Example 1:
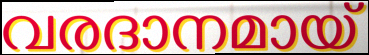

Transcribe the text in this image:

വരദാനമായ്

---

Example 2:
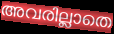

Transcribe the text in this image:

അവരില്ലാതെ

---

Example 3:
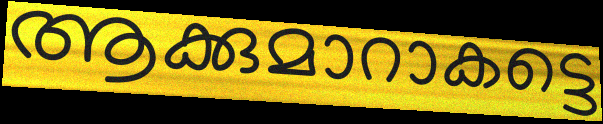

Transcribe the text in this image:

ആക്കുമാറാകട്ടെ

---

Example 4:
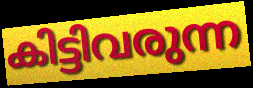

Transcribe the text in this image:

കിട്ടിവരുന്ന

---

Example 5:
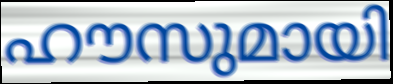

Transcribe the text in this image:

ഹൗസുമായി